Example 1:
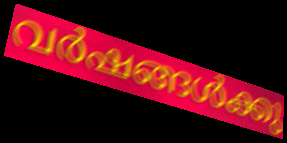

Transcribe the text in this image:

വർഷങ്ങൾക്കു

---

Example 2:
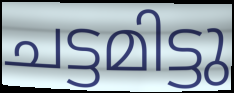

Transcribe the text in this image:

ചട്ടമിട്ടു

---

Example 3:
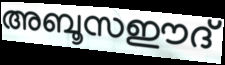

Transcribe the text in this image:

അബൂസഈദ്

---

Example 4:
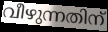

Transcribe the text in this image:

വീഴുന്നതിന്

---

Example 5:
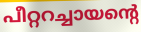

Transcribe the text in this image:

പീറ്ററച്ചായന്റെ